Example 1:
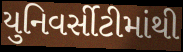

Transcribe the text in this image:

યુનિવર્સીટીમાંથી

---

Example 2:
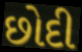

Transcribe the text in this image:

છોદી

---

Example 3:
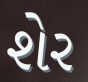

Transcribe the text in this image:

શેર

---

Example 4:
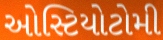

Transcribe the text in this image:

ઓસ્ટિયોટોમી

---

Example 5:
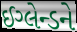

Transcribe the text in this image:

ઈગ્લેન્ડને